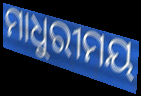
ମାଧୁରୀମୟ